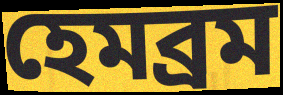
হেমব্রম